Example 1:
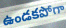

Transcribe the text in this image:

ఉండకపోగా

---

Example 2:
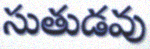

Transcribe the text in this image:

సుతుడవు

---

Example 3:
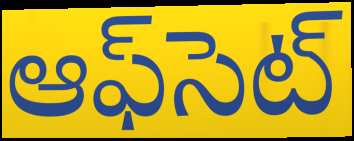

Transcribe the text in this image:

ఆఫ్‌సెట్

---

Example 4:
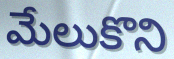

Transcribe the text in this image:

మేలుకొని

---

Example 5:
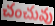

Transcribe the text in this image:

చంచువు